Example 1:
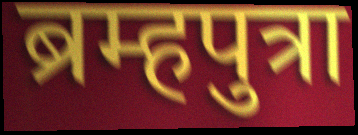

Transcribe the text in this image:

ब्रम्हपुत्रा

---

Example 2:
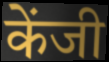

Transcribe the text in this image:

केंजी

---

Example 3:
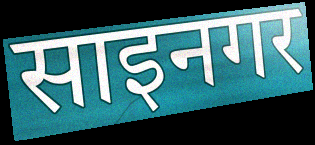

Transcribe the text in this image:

साइनगर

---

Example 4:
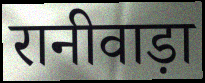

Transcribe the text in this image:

रानीवाड़ा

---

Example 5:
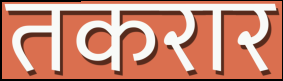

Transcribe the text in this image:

तकरार